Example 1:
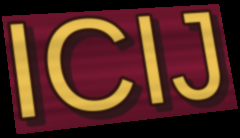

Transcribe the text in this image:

ICIJ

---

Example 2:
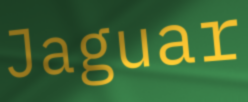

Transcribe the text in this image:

Jaguar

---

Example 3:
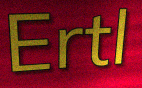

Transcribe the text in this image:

Ertl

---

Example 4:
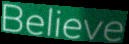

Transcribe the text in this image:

Believe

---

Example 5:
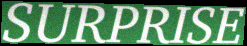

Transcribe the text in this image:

SURPRISE